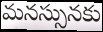
మనస్సునకు